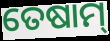
ତେଷାମ୍